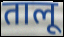
तालू